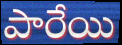
పారేయి